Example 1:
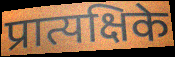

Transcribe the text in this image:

प्रात्यक्षिके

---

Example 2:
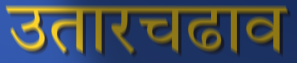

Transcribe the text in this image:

उतारचढाव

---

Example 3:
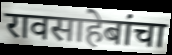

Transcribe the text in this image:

रावसाहेबांचा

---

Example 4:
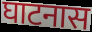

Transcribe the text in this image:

घाटनास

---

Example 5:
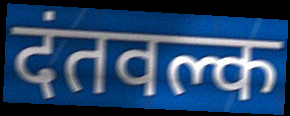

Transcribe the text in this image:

दंतवल्क